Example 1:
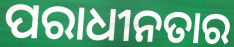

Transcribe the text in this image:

ପରାଧୀନତାର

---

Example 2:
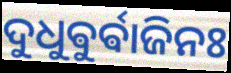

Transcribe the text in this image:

ଦୁଧୁଵୁର୍ଵାଜିନଃ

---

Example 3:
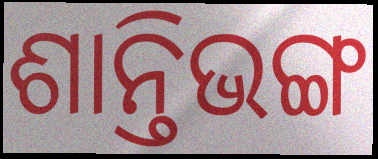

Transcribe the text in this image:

ଶାନ୍ତିଭଙ୍ଗ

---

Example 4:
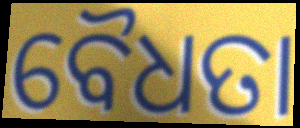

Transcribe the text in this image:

ବୈଧତା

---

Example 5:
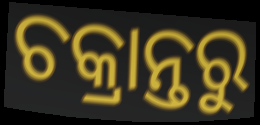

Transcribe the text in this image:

ଚକ୍ରାନ୍ତରୁ